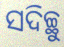
ସଦିଚ୍ଛୁ